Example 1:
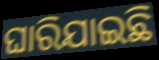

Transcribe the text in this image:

ଘାରିଯାଇଛି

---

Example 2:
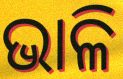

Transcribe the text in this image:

ଭାଳି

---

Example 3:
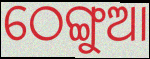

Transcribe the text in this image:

ଠେଙ୍ଗୁଆ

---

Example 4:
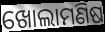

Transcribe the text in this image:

ଖୋଲାମଣିଷ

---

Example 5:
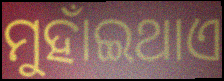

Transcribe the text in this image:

ମୁହାଁଇଥାଏ